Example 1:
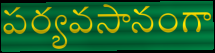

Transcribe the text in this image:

పర్యవసానంగా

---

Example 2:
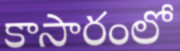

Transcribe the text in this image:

కాసారంలో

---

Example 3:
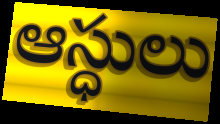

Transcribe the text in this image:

ఆస్ధులు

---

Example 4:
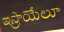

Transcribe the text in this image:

ఇస్రాయేలూ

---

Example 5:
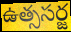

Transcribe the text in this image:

ఉత్ససర్జ